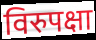
विरुपक्षा